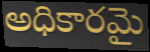
అధికారమై